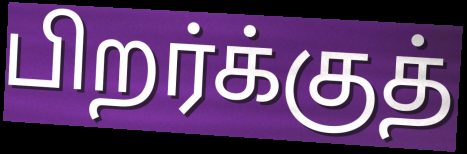
பிறர்க்குத்